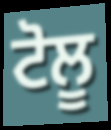
ਟੋਲੂ